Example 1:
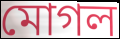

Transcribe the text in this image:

মোগল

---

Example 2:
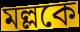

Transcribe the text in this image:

মল্লকে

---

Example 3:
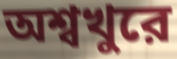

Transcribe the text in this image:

অশ্বখুরে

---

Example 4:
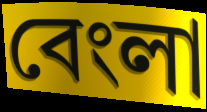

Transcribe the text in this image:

বেংলা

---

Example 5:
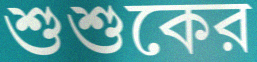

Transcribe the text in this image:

শুশুকের